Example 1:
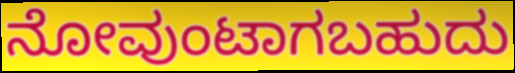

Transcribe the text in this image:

ನೋವುಂಟಾಗಬಹುದು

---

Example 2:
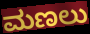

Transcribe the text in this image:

ಮಣಲು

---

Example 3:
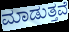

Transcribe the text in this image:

ಮಾಡುತ್ತವೆ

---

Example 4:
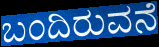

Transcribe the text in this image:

ಬಂದಿರುವನೆ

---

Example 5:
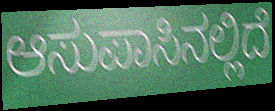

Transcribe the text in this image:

ಆಸುಪಾಸಿನಲ್ಲಿದೆ